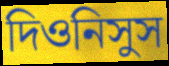
দিওনিসুস